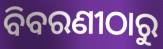
ବିବରଣୀଠାରୁ